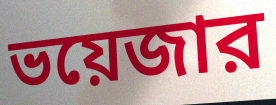
ভয়েজার